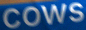
cows